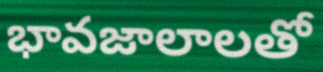
భావజాలాలతో